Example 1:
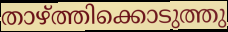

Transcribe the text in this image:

താഴ്ത്തിക്കൊടുത്തു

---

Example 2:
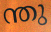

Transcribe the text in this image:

ന്തു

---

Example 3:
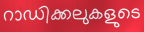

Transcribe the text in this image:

റാഡിക്കലുകളുടെ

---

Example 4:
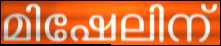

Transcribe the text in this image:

മിഷേലിന്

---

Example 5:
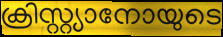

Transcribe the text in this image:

ക്രിസ്റ്റ്യാനോയുടെ